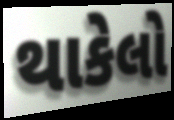
થાકેલો